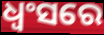
ଧ୍ଵଂସରେ